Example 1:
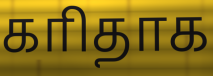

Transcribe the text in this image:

கரிதாக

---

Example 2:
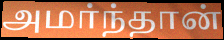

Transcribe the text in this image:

அமர்ந்தான்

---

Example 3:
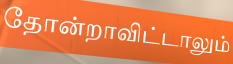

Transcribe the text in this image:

தோன்றாவிட்டாலும்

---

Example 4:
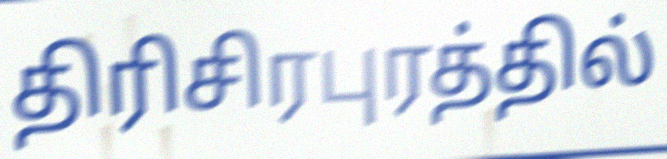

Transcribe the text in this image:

திரிசிரபுரத்தில்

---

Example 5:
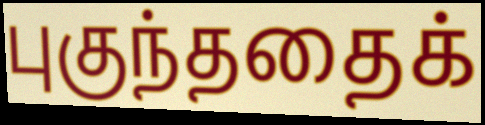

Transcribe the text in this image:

புகுந்ததைக்